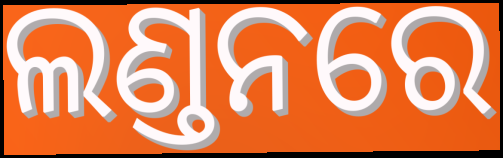
ଲଣ୍ଡନରେ